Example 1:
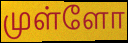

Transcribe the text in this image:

முள்ளோ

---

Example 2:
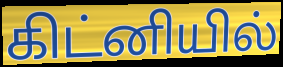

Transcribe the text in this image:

கிட்னியில்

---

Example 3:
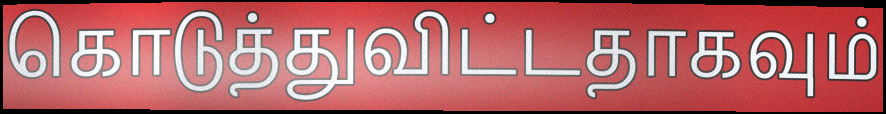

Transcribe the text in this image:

கொடுத்துவிட்டதாகவும்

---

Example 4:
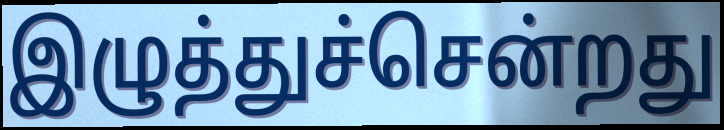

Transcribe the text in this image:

இழுத்துச்சென்றது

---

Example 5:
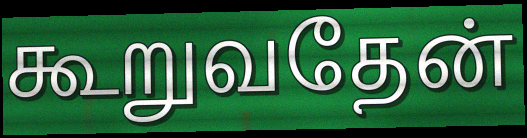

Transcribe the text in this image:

கூறுவதேன்